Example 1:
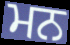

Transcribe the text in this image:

ਮਨ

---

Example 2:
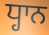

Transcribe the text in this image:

ਧ੍ਹਾਨ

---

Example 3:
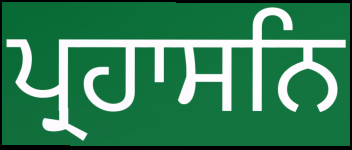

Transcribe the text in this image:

ਪ੍ਰਹਾਸਨਿ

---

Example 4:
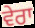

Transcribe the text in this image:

ਵੇਰਾ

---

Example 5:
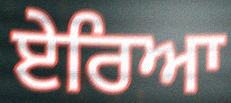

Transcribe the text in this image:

ਏਰਿਆ